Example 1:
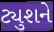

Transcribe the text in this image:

ટ્યુશને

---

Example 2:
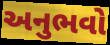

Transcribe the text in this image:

અનુભવો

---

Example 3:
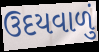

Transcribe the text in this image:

ઉદયવાળું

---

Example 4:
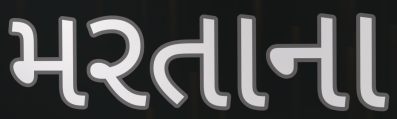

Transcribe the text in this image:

મરતાના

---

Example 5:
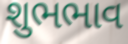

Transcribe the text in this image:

શુભભાવ